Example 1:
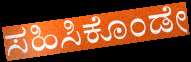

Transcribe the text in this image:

ಸಹಿಸಿಕೊಂಡೇ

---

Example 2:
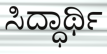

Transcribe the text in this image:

ಸಿದ್ಧಾರ್ಥಿ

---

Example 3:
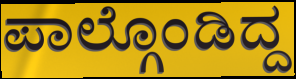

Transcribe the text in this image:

ಪಾಲ್ಗೊಂಡಿದ್ದ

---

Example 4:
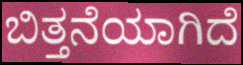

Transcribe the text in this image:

ಬಿತ್ತನೆಯಾಗಿದೆ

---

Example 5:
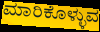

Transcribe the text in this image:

ಮಾರಿಕೊಳ್ಳುವ